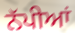
ਨੱਪੀਆਂ